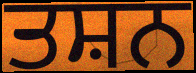
ਤਸ਼ਨ